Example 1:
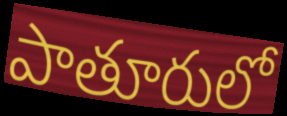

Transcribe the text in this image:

పాతూరులో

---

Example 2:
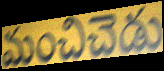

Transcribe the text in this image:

మంచిచెడు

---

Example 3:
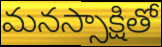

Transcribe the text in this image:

మనస్సాక్షితో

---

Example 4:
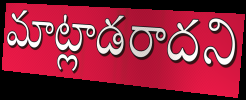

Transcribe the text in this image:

మాట్లాడరాదని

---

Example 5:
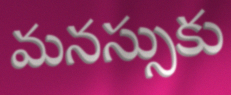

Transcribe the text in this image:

మనస్సుకు